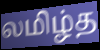
லமிழ்த